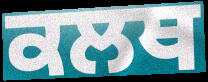
ਕਲਥ